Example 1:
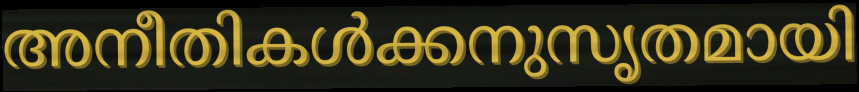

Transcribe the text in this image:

അനീതികൾക്കനുസൃതമായി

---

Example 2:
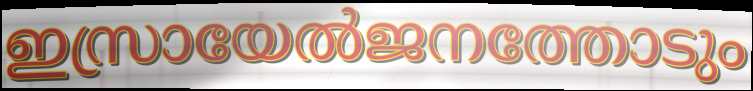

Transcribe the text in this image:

ഇസ്രായേൽജനത്തോടും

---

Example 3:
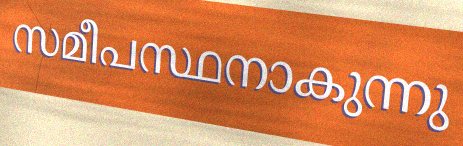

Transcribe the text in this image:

സമീപസ്ഥനാകുന്നു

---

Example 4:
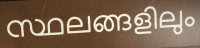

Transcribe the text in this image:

സ്ഥലങ്ങളിലും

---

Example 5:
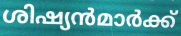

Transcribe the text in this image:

ശിഷ്യൻമാർക്ക്